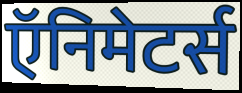
ऍनिमेटर्स